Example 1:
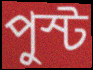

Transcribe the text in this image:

পুস্ট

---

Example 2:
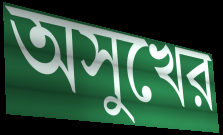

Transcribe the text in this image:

অসুখের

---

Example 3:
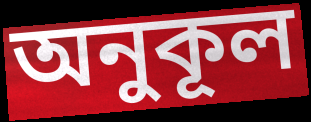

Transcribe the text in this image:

অনুকূল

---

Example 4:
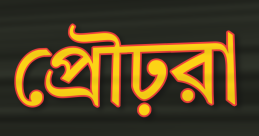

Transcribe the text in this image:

প্রৌঢ়রা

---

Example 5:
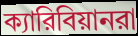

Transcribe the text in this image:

ক্যারিবিয়ানরা